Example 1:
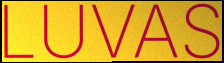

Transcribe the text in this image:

LUVAS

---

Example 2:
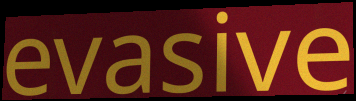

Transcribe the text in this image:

evasive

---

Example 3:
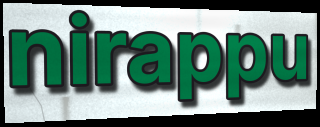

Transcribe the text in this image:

nirappu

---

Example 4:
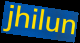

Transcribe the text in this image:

jhilun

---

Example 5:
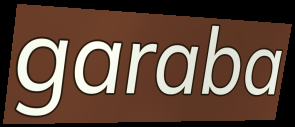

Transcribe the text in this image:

garaba